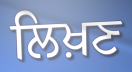
ਲਿਖ਼ਣ